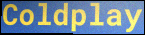
Coldplay